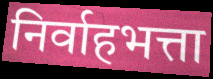
निर्वाहभत्ता